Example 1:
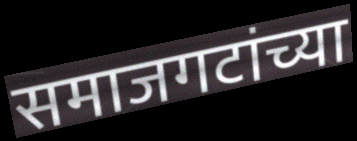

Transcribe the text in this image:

समाजगटांच्या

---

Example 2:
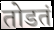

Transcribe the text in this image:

तोडतं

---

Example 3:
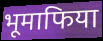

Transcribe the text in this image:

भूमाफिया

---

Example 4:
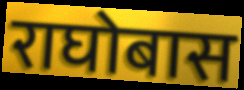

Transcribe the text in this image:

राघोबास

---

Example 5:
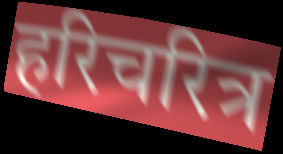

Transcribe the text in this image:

हरिचरित्र